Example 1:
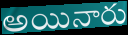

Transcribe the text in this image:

అయినారు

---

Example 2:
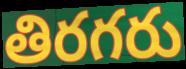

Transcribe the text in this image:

తిరగరు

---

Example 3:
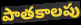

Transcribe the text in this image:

పాతకాలపు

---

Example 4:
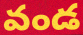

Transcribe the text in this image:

వండ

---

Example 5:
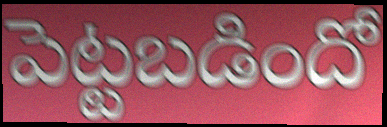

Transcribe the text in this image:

పెట్టబడిందో